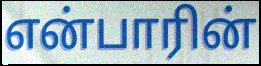
என்பாரின்